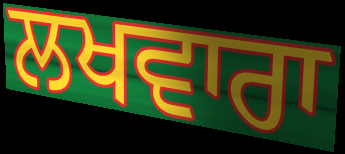
ਲਖਵਾਰਾ